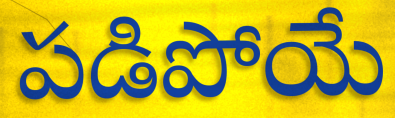
పడిపోయే